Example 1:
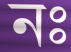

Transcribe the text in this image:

নঃ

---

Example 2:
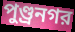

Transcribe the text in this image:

পুণ্ড্রনগর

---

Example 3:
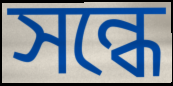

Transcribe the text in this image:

সন্ধে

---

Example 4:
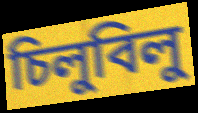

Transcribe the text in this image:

চিলুবিলু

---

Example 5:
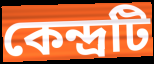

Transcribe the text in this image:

কেন্দ্রটি